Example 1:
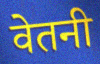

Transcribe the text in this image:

वेतनी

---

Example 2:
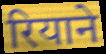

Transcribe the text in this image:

रियाने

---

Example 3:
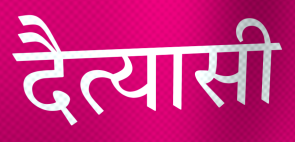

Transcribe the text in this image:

दैत्यासी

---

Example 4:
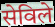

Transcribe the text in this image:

सेविले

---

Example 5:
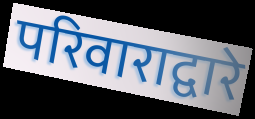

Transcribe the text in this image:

परिवाराद्वारे